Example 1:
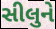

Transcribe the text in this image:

સીલુને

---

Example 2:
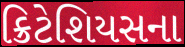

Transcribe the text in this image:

ક્રિટેશિયસના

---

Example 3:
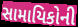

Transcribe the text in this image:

સામાયિકોની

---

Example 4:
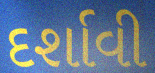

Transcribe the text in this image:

દર્શાવી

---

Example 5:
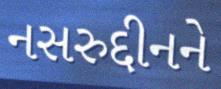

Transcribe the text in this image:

નસરુદ્દીનને